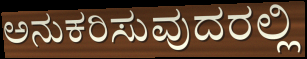
ಅನುಕರಿಸುವುದರಲ್ಲಿ